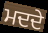
ਮਦਦੇ